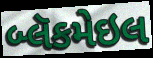
બ્લૅકમેઇલ